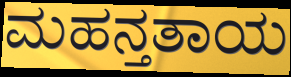
ಮಹನ್ತತಾಯ